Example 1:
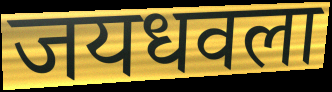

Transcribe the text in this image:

जयधवला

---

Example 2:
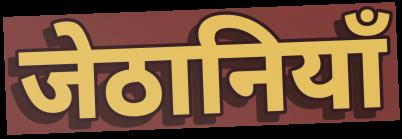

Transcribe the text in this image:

जेठानियाँ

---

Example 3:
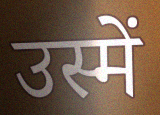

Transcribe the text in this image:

उस्में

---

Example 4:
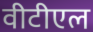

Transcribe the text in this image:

वीटीएल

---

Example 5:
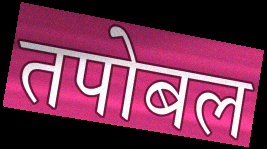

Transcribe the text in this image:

तपोबल